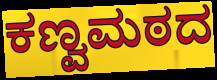
ಕಣ್ವಮಠದ